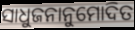
ସାଧୁଜନାନୁମୋଦିତ